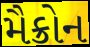
મૈક્રોન